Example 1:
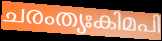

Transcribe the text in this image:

ചരംത്യഃകിമപി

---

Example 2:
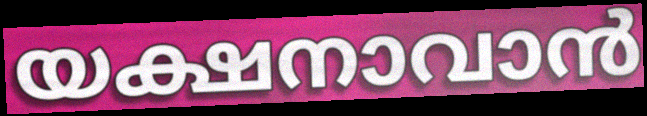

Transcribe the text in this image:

യക്ഷനാവാൻ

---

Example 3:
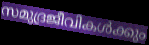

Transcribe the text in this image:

സമുദ്രജീവികൾക്കും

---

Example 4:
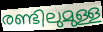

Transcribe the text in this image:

രണ്ടിലുമുള്ള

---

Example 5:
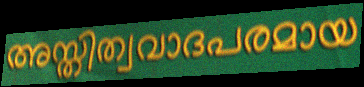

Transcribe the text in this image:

അസ്തിത്വവാദപരമായ